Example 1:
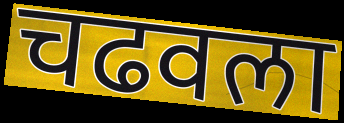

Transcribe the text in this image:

चढवला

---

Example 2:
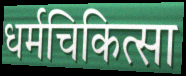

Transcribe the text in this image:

धर्मचिकित्सा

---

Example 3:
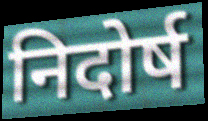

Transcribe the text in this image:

निदोर्ष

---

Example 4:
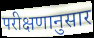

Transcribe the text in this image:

परीक्षणानुसार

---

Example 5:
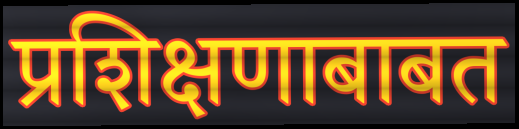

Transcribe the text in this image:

प्रशिक्षणाबाबत